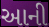
આની